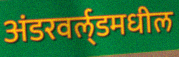
अंडरवर्ल्डमधील